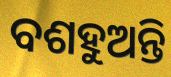
ବଶହୁଅନ୍ତି